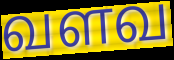
வளவ